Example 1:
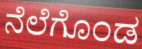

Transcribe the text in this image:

ನೆಲೆಗೊಂಡ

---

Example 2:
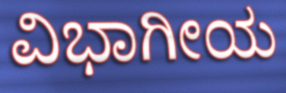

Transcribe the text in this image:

ವಿಭಾಗೀಯ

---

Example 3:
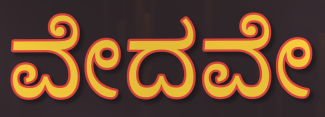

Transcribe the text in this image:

ವೇದವೇ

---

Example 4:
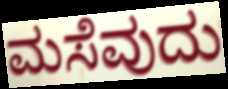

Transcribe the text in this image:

ಮಸೆವುದು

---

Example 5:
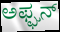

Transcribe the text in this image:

ಅಫ್ಘನ್